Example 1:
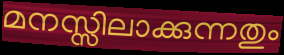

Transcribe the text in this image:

മനസ്സിലാക്കുന്നതും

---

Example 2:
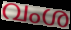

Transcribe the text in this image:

വംശ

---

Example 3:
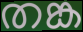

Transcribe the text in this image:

തങ്ക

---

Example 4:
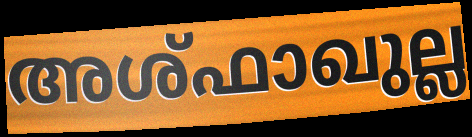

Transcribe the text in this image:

അശ്ഫാഖുല്ല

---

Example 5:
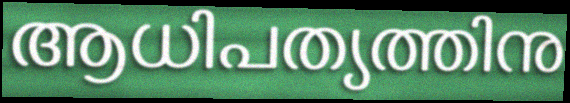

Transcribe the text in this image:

ആധിപത്യത്തിനു